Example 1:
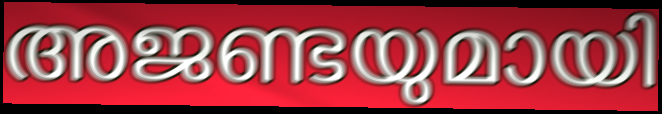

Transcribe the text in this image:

അജണ്ടയുമായി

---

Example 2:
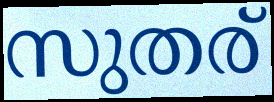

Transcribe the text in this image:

സുതര്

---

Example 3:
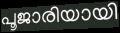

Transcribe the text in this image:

പൂജാരിയായി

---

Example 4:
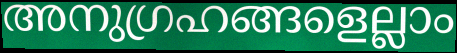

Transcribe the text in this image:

അനുഗ്രഹങ്ങളെല്ലാം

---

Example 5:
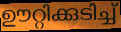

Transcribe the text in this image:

ഊറ്റിക്കുടിച്ച്